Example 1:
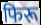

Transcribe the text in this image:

फिरू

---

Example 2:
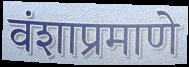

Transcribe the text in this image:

वंशाप्रमाणे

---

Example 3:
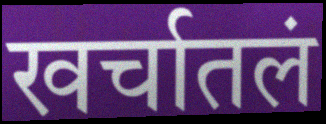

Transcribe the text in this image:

खर्चातलं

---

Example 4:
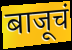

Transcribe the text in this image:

बाजूचं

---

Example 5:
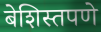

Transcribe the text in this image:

बेशिस्तपणे